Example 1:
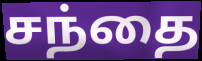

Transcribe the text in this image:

சந்தை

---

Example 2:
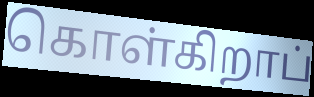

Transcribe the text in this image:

கொள்கிறாப்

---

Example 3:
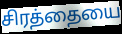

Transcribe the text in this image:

சிரத்தையை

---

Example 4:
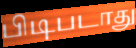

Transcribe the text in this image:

பிடிபடாது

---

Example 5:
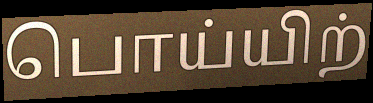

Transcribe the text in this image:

பொய்யிற்